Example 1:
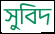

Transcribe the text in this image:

সুবিদ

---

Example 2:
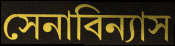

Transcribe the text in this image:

সেনাবিন্যাস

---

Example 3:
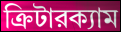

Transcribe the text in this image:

ক্রিটারক্যাম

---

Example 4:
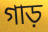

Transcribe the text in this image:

গাড়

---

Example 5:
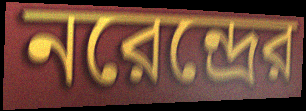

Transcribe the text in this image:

নরেন্দ্রের